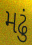
મઢું